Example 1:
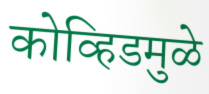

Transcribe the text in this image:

कोव्हिडमुळे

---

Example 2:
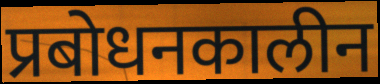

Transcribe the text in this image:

प्रबोधनकालीन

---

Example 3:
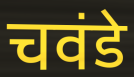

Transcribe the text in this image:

चवंडे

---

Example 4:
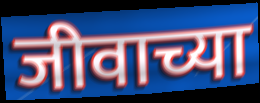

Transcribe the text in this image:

जीवाच्या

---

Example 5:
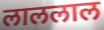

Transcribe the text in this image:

लाललाल